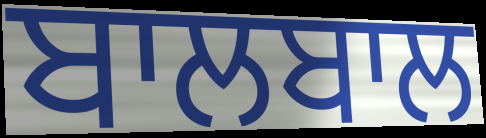
ਬਾਲਬਾਲ